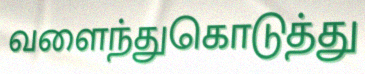
வளைந்துகொடுத்து